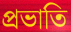
প্রভাতি